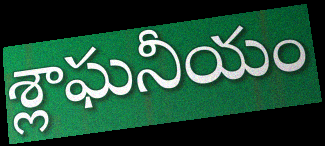
శ్లాఘనీయం